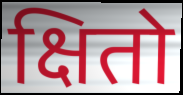
क्षितो